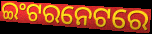
ଇଂଟରନେଟରେ